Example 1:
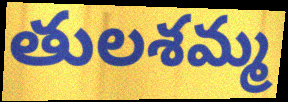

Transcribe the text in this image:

తులశమ్మ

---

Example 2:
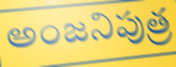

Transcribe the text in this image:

అంజనిపుత్ర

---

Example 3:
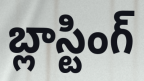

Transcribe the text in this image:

బ్లాస్టింగ్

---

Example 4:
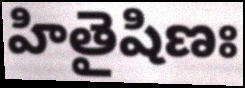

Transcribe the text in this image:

హితైషిణః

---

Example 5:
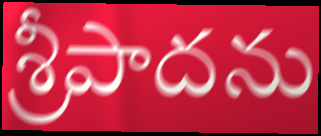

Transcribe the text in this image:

శ్రీపాదను